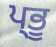
ਪ੍ਭੂ